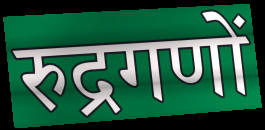
रुद्रगणों